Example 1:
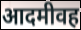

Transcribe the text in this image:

आदमीवह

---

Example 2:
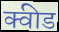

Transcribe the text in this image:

क्वीड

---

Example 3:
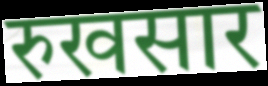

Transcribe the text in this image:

रुखसार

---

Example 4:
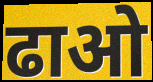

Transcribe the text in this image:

ढाओ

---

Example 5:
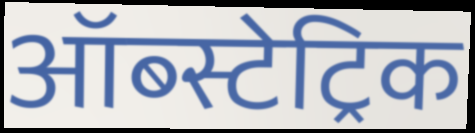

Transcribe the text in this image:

ऑब्स्टेट्रिक